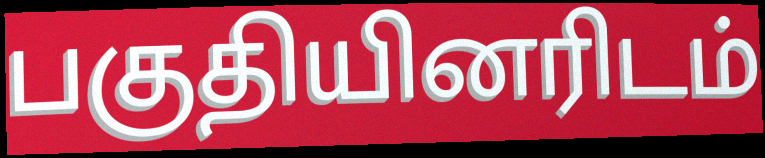
பகுதியினரிடம்